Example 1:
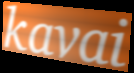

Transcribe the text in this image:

kavai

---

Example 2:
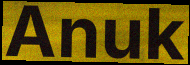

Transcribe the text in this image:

Anuk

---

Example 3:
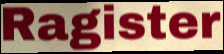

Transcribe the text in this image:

Ragister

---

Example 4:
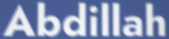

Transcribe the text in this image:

Abdillah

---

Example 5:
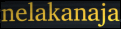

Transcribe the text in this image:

nelakanaja